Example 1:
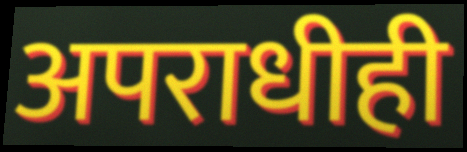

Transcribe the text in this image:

अपराधीही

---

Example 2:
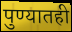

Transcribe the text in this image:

पुण्यातही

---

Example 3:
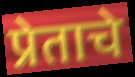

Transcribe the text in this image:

प्रेताचे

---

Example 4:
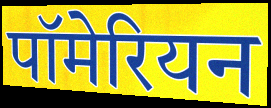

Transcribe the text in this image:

पॉमेरियन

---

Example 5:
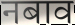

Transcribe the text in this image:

नबाव